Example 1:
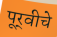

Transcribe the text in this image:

पूर्वीचे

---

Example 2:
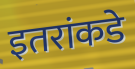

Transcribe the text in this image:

इतरांकडे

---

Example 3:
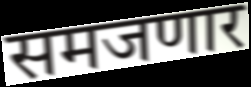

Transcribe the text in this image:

समजणार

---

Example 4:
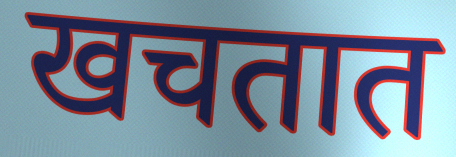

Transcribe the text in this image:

खचतात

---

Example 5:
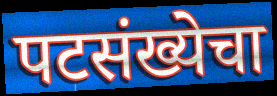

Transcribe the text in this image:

पटसंख्येचा